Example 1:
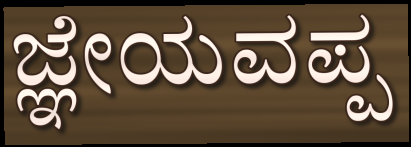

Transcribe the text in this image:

ಜ್ಞೇಯವಪ್ಪ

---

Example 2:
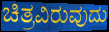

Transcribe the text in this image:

ಚಿತ್ರವಿರುವುದು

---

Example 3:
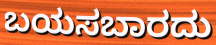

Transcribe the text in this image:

ಬಯಸಬಾರದು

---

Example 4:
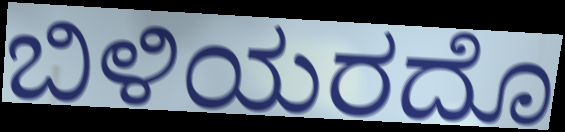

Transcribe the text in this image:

ಬಿಳಿಯರದೊ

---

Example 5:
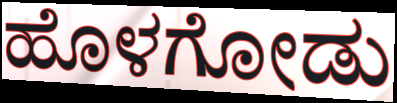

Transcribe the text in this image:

ಹೊಳಗೋಡು